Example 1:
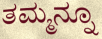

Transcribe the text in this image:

ತಮ್ಮನ್ನೂ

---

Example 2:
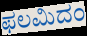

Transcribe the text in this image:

ಫಲಮಿದಂ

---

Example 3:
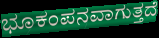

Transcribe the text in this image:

ಭೂಕಂಪನವಾಗುತ್ತದೆ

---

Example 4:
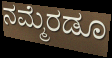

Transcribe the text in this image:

ನಮ್ಮೆರಡೂ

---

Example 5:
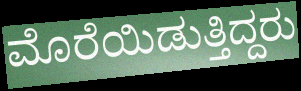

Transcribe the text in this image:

ಮೊರೆಯಿಡುತ್ತಿದ್ದರು